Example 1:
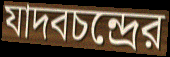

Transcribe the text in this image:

যাদবচন্দ্রের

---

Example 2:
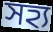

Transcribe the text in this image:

সহ্য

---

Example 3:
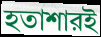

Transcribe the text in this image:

হতাশারই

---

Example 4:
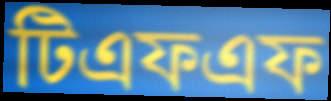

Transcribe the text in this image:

টিএফএফ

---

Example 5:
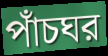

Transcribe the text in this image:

পাঁচঘর